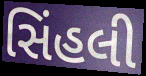
સિંહલી